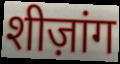
शीज़ांग